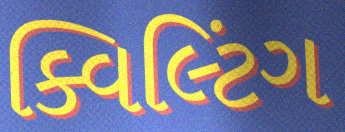
ક્વિલ્ટિંગ